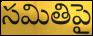
సమితిపై